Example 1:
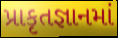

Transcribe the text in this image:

પ્રાકૃતજ્ઞાનમાં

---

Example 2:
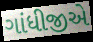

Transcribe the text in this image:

ગાંધીજીએ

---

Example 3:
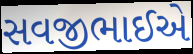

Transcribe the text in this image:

સવજીભાઈએ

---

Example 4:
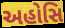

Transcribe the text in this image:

અહોસિ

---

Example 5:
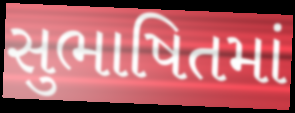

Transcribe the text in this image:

સુભાષિતમાં